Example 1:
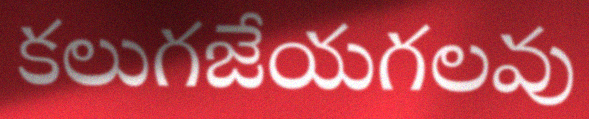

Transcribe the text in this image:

కలుగజేయగలవు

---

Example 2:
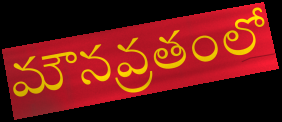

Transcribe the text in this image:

మౌనవ్రతంలో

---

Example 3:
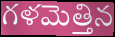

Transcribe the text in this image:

గళమెత్తిన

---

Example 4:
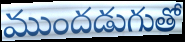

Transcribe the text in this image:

ముందడుగుతో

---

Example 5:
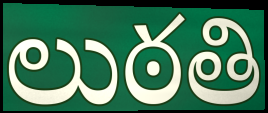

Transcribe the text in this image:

లుఠతి